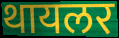
थायलर